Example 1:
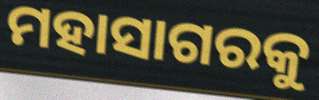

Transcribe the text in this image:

ମହାସାଗରକୁ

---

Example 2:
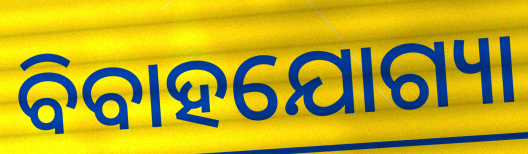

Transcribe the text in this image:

ବିବାହଯୋଗ୍ୟା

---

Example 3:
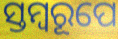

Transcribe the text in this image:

ସ୍ତମ୍ବରୂପେ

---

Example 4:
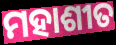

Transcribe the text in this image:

ମହାଶୀତ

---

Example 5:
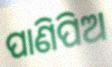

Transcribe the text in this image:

ପାଣିପିଅ